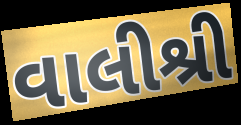
વાલીશ્રી